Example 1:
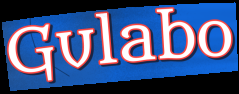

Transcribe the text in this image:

Gulabo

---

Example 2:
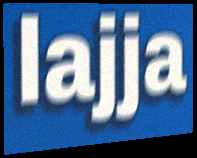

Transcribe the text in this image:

lajja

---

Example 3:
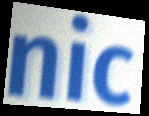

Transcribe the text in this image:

nic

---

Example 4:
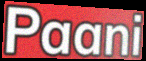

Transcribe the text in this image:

Paani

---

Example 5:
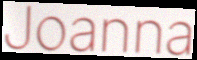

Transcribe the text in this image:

Joanna